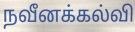
நவீனக்கல்வி